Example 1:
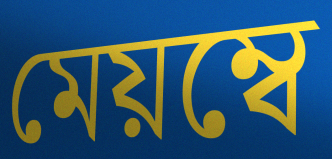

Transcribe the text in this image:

মেয়ম্বে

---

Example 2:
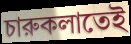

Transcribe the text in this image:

চারুকলাতেই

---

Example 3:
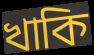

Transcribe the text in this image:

খাকি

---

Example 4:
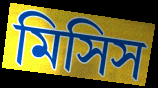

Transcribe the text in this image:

মিসিস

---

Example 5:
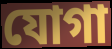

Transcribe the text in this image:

যোগা